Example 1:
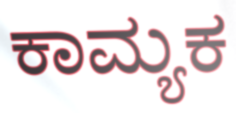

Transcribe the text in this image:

ಕಾಮ್ಯಕ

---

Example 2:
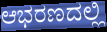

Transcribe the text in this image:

ಆಭರಣದಲ್ಲಿ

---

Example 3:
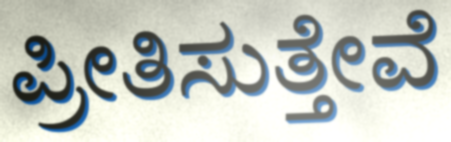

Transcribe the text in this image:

ಪ್ರೀತಿಸುತ್ತೇವೆ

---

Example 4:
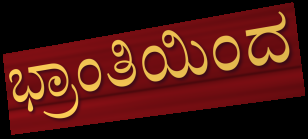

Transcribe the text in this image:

ಭ್ರಾಂತಿಯಿಂದ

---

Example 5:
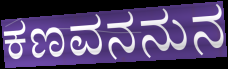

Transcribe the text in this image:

ಕಣವನನುನ